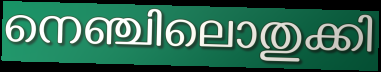
നെഞ്ചിലൊതുക്കി